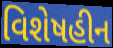
વિશેષહીન